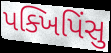
પક્ખિપિંસુ